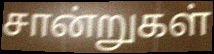
சான்றுகள்